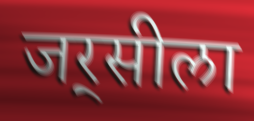
जर्सीला